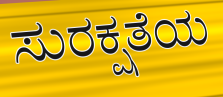
ಸುರಕ್ಷತೆಯ